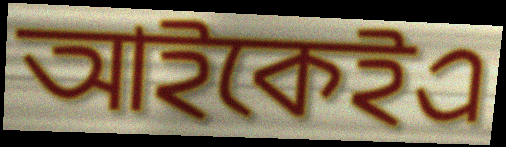
আইকেইএ